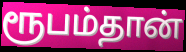
ரூபம்தான்